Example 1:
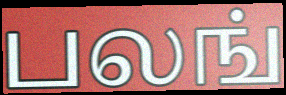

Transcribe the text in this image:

பலங்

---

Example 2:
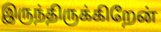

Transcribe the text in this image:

இருந்திருக்கிறேன்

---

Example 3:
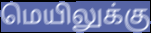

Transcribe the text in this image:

மெயிலுக்கு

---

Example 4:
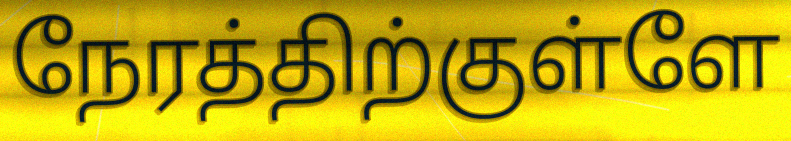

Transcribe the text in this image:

நேரத்திற்குள்ளே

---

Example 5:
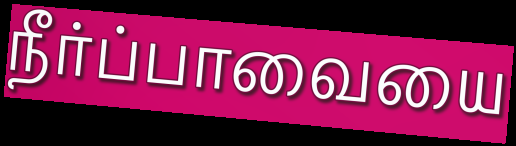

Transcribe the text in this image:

நீர்ப்பாவையை